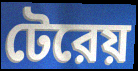
টেরেয়